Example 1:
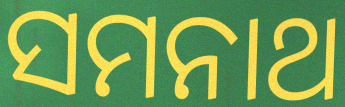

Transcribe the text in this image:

ସମନାଥ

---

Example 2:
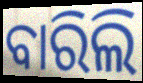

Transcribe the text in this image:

ବାରିଲି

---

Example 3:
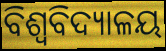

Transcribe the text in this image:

ବିଶ୍ଵବିଦ୍ୟାଳୟ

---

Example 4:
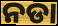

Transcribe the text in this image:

ନଡା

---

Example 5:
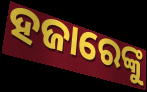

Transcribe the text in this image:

ହଜାରେଙ୍କୁ